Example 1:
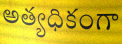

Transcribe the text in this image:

అత్యధికంగా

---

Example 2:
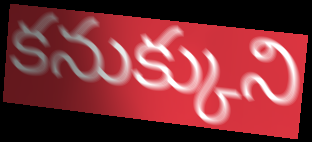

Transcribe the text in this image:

కనుక్కుని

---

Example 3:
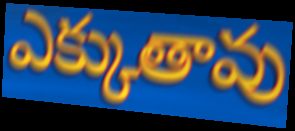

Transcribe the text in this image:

ఎక్కుతావు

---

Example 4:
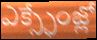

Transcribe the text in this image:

ఎక్స్ఛేంజ్లో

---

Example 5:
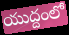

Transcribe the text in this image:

యుద్దంలో